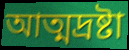
আত্মদ্রষ্টা